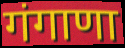
गंगाणा